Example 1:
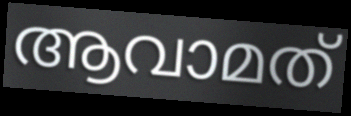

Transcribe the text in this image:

ആവാമത്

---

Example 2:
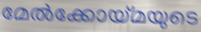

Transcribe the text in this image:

മേൽക്കോയ്മയുടെ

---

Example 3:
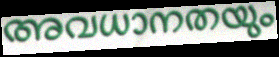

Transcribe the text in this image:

അവധാനതയും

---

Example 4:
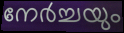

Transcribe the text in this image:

നേർച്ചയും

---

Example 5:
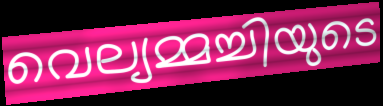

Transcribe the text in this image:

വെല്യമ്മച്ചിയുടെ